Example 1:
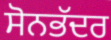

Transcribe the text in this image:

ਸੋਨਭੱਦਰ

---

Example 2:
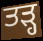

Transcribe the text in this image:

ਤੜ੍ਹ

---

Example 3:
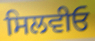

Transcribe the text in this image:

ਸਿਲਵੀਓ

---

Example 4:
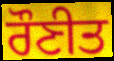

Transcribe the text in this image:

ਰੌਣੀਤ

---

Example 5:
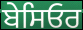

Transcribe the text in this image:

ਬੇਸਿਓਰ